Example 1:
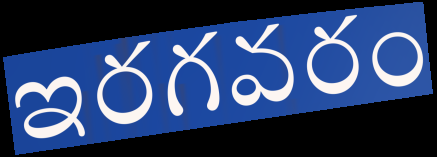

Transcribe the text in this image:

ఇరగవరం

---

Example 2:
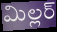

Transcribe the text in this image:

మిల్లర్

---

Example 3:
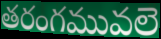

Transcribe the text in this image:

తరంగమువలె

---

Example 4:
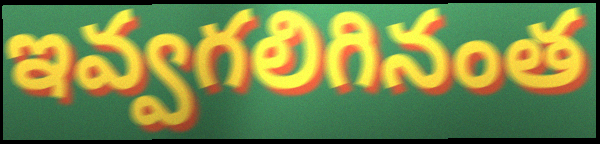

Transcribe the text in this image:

ఇవ్వగలిగినంత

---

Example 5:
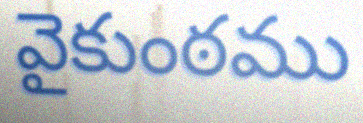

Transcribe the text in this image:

వైకుంఠము